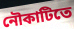
নৌকাটিতে